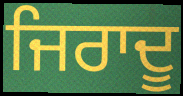
ਜਿਰਾਦੂ